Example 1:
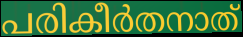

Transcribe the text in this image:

പരികീർതനാത്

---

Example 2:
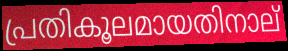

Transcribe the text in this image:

പ്രതികൂലമായതിനാല്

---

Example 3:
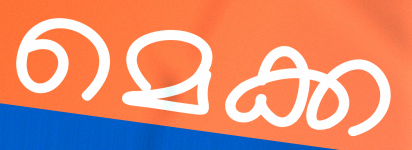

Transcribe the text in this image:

മെക്ക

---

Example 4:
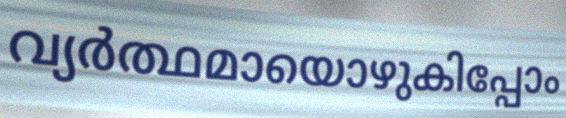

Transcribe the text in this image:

വ്യർത്ഥമായൊഴുകിപ്പോം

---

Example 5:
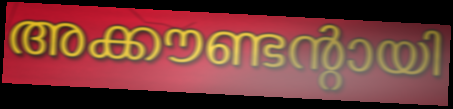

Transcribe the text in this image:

അക്കൗണ്ടന്റായി